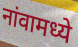
नांवामध्ये